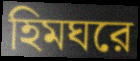
হিমঘরে